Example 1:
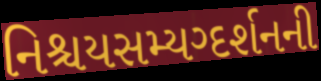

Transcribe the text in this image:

નિશ્ચયસમ્યગ્દર્શનની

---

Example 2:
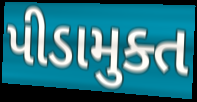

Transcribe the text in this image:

પીડામુક્ત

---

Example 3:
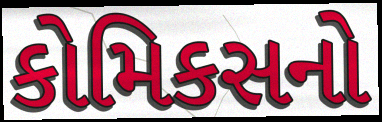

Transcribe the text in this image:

કોમિકસનો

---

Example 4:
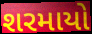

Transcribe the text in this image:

શરમાયો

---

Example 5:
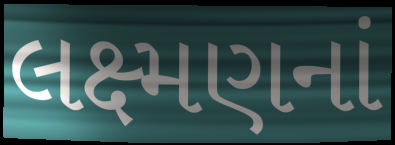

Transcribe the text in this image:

લક્ષ્મણનાં